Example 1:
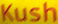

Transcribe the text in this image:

Kush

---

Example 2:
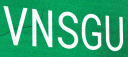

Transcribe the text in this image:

VNSGU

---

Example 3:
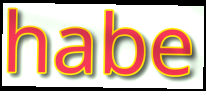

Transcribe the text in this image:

habe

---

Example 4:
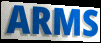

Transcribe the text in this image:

ARMS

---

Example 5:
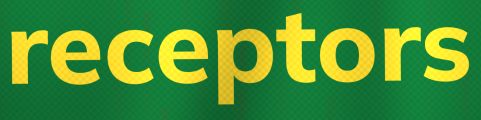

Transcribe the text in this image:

receptors